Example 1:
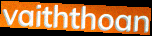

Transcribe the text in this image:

vaiththoan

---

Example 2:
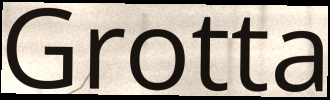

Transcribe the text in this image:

Grotta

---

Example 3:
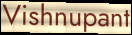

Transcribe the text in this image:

Vishnupant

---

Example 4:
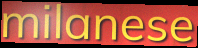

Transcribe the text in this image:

milanese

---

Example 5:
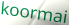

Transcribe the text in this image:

koormai